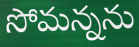
సోమన్నను